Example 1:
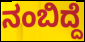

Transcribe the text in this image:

ನಂಬಿದ್ದೆ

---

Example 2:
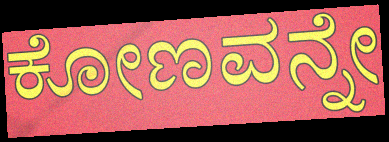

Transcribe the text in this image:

ಕೋಣವನ್ನೇ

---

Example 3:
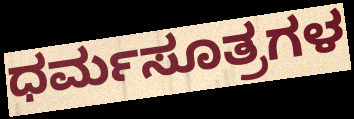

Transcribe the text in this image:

ಧರ್ಮಸೂತ್ರಗಳ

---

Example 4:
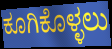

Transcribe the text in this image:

ಕೂಗಿಕೊಳ್ಳಲು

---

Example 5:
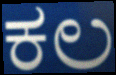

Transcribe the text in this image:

ಕಲ